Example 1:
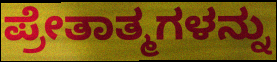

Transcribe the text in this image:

ಪ್ರೇತಾತ್ಮಗಳನ್ನು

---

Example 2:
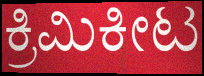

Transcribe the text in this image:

ಕ್ರಿಮಿಕೀಟ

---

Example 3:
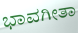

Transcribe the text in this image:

ಭಾವಗೀತಾ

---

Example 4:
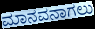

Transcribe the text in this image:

ಮಾನವನಾಗಲು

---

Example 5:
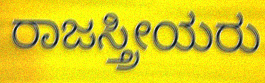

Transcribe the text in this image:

ರಾಜಸ್ತ್ರೀಯರು